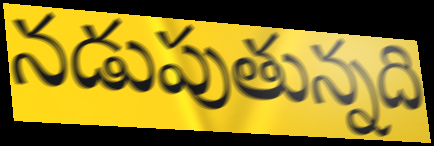
నడుపుతున్నది